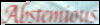
Abstemious